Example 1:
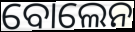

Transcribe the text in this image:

ବୋଲେନ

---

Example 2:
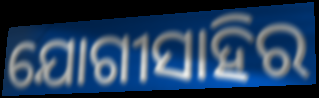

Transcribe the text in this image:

ଯୋଗୀସାହିର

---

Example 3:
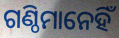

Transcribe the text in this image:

ଗଣ୍ଠିମାନେହିଁ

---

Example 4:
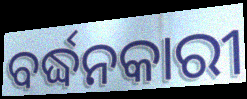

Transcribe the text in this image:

ବର୍ଦ୍ଧନକାରୀ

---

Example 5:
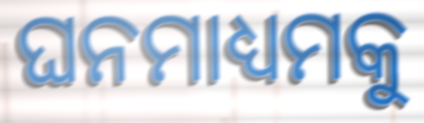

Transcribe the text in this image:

ଘନମାଧ୍ୟମକୁ